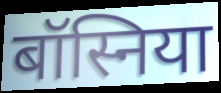
बॉस्निया